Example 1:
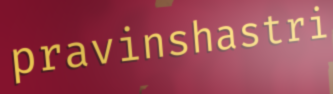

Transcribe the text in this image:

pravinshastri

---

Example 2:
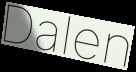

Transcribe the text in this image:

Dalen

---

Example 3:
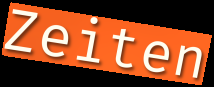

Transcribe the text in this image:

Zeiten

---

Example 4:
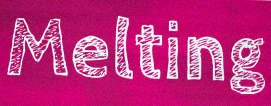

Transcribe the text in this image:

Melting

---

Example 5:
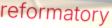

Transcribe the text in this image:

reformatory